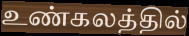
உண்கலத்தில்